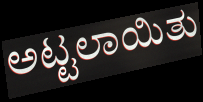
ಅಟ್ಟಲಾಯಿತು